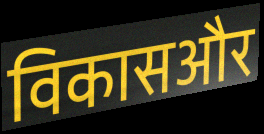
विकासऔर